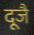
दूजै